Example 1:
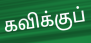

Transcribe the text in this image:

கவிக்குப்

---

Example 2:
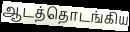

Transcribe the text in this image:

ஆடத்தொடங்கிய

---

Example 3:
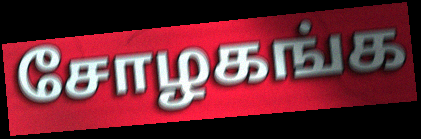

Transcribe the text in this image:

சோழகங்க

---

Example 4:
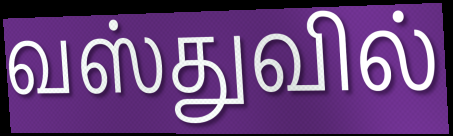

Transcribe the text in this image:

வஸ்துவில்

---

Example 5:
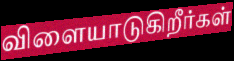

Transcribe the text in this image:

விளையாடுகிறீர்கள்